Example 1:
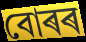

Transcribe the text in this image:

বোৰৰ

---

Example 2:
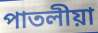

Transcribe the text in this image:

পাতলীয়া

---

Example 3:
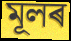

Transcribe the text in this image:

মূলৰ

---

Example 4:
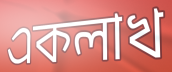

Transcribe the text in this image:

একলাখ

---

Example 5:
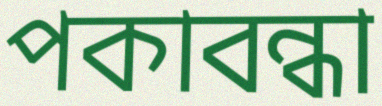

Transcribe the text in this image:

পকাবন্ধা